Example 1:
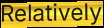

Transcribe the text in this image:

Relatively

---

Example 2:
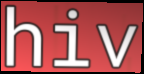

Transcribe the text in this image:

hiv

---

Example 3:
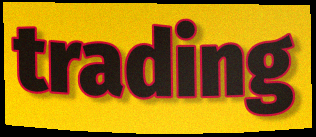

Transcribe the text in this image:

trading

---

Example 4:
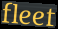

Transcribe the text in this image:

fleet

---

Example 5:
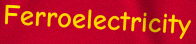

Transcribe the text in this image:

Ferroelectricity